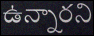
ఉన్నారని